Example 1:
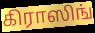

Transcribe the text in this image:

கிராஸிங்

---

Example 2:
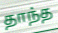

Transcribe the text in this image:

தாந்த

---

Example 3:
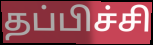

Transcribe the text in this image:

தப்பிச்சி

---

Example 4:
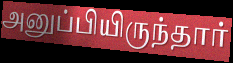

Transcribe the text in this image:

அனுப்பியிருந்தார்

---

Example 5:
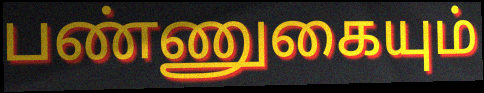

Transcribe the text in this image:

பண்ணுகையும்